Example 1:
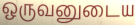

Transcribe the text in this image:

ஒருவனுடைய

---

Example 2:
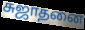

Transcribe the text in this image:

சுஜாதனை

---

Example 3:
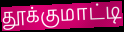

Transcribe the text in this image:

தூக்குமாட்டி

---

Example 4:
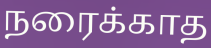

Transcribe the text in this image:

நரைக்காத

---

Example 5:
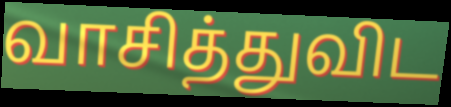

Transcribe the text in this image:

வாசித்துவிட